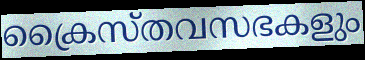
ക്രൈസ്തവസഭകളും